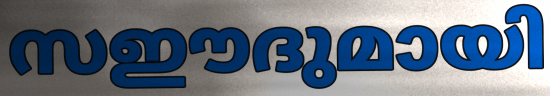
സഈദുമായി